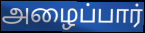
அழைப்பார்